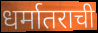
धर्मातराची